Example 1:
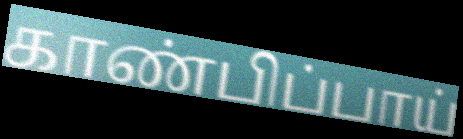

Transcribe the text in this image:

காண்பிப்பாய்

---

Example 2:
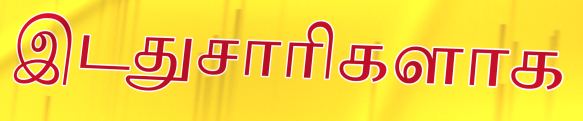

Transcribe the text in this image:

இடதுசாரிகளாக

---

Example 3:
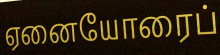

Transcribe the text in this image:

ஏனையோரைப்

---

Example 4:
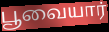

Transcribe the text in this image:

பூவையார்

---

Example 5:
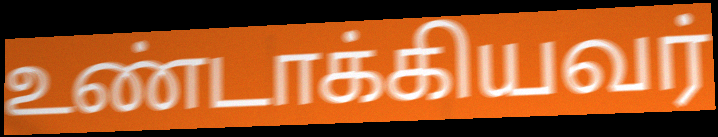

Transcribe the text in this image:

உண்டாக்கியவர்